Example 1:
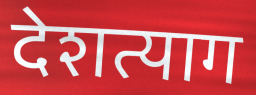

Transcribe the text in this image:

देशत्याग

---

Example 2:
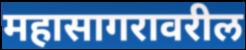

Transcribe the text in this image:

महासागरावरील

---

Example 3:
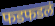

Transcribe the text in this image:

फडफडलं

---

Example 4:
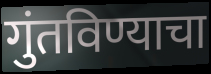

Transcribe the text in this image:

गुंतविण्याचा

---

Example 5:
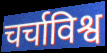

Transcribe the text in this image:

चर्चाविश्व